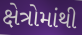
ક્ષેત્રોમાંથી